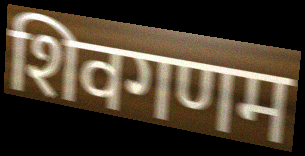
शिवगणम